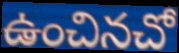
ఉంచినచో